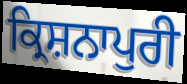
ਕ੍ਰਿਸ਼ਨਾਪੁਰੀ